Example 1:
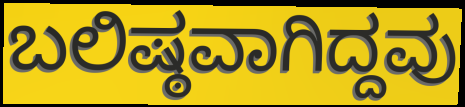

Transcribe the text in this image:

ಬಲಿಷ್ಠವಾಗಿದ್ದವು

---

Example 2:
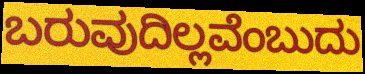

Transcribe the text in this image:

ಬರುವುದಿಲ್ಲವೆಂಬುದು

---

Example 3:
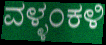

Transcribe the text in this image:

ವಳ್ಳಂಕಳಿ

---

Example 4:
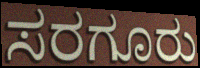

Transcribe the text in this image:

ಸರಗೂರು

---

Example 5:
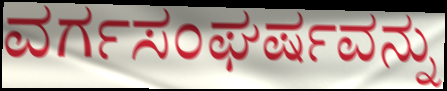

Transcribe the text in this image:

ವರ್ಗಸಂಘರ್ಷವನ್ನು